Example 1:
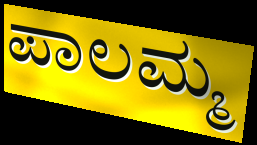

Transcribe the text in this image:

ಪಾಲಮ್ಮ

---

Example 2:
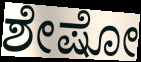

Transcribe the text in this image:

ಶೇಷೋ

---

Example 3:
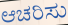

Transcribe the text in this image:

ಆಚರಿಸು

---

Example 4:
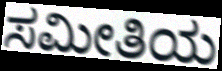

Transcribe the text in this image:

ಸಮೀತಿಯ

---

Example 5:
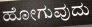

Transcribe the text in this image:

ಹೋಗುವುದು